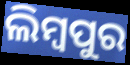
ଲିମ୍ବପୁର